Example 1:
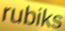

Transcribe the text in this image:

rubiks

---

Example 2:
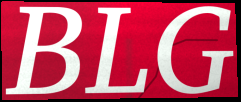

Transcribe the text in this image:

BLG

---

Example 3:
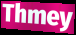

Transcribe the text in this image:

Thmey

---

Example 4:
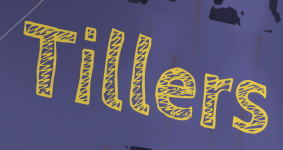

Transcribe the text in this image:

Tillers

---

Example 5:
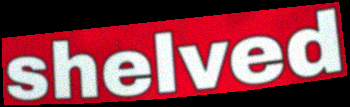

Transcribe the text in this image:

shelved